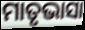
ମାତୃଭାସା